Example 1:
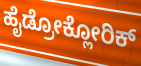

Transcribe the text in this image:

ಹೈಡ್ರೋಕ್ಲೋರಿಕ್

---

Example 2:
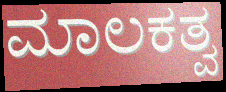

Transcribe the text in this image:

ಮಾಲಕತ್ವ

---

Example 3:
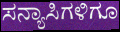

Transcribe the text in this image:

ಸನ್ಯಾಸಿಗಳಿಗೂ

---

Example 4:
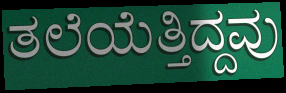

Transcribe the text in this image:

ತಲೆಯೆತ್ತಿದ್ದವು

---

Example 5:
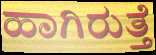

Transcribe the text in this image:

ಹಾಗಿರುತ್ತೆ